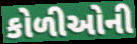
કોળીઓની